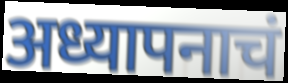
अध्यापनाचं